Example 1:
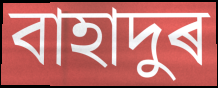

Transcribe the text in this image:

বাহাদুৰ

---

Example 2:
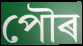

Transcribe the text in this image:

পৌৰ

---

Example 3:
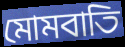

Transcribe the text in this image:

মোমবাতি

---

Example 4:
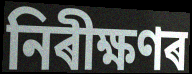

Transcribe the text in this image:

নিৰীক্ষণৰ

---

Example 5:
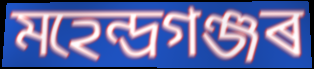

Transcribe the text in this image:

মহেন্দ্ৰগঞ্জৰ